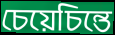
চেয়েচিন্তে